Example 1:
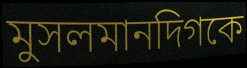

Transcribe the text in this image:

মুসলমানদিগকে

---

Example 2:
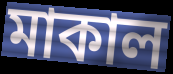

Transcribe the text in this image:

মাকাল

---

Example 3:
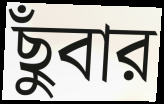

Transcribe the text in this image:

ছুঁবার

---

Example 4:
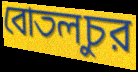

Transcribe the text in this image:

বোতলচুর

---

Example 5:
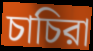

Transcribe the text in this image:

চাচিরা